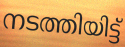
നടത്തിയിട്ട്